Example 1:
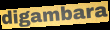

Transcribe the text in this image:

digambara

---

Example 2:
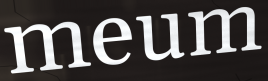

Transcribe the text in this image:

meum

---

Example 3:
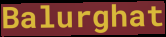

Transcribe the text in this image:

Balurghat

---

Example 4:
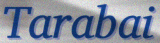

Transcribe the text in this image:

Tarabai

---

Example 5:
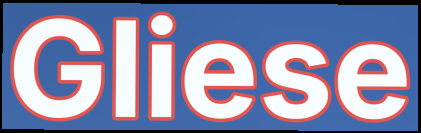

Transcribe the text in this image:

Gliese